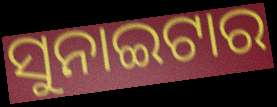
ସୁନାଇଟାର